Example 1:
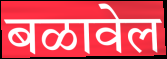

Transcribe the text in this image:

बळावेल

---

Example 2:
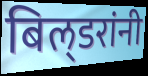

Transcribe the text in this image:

बिल्डरांनी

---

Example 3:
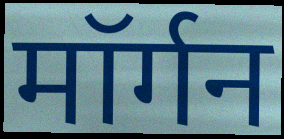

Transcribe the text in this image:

मॉर्गन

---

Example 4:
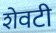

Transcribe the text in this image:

शेवटी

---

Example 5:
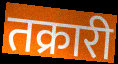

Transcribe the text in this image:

तक्रारी